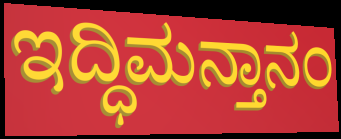
ಇದ್ಧಿಮನ್ತಾನಂ